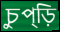
চুপ্‌ড়ি